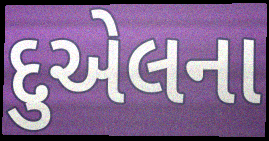
દુએલના